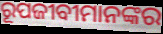
ରୂପଜୀବୀମାନଙ୍କର